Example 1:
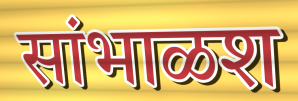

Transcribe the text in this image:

सांभाळश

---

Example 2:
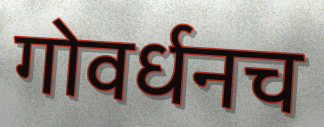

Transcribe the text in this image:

गोवर्धनच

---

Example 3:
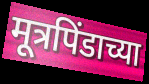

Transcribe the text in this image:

मूत्रपिंडाच्या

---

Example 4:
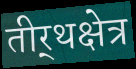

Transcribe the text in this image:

तीर्थक्षेत्र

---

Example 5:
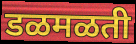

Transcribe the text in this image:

डळमळती